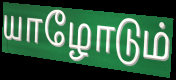
யாழோடும்